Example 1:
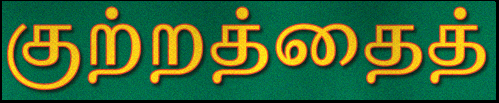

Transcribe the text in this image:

குற்றத்தைத்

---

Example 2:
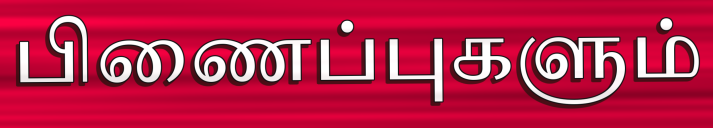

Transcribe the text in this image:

பிணைப்புகளும்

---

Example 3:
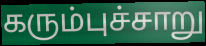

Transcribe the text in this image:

கரும்புச்சாறு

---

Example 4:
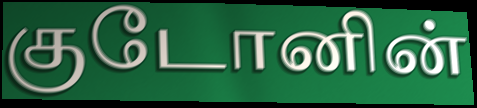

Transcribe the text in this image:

குடோனின்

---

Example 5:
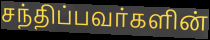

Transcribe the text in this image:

சந்திப்பவர்களின்